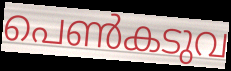
പെൺകടുവ